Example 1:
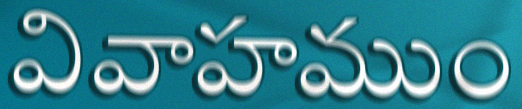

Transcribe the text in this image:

వివాహముం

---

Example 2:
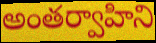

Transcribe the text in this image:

అంతర్వాహిని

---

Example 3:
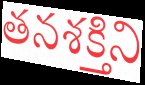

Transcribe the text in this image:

తనశక్తిని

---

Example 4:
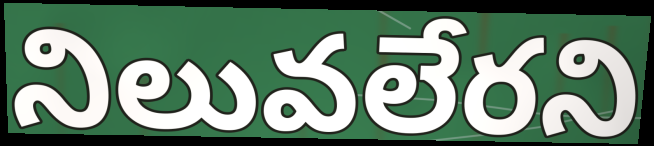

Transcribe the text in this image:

నిలువలేరని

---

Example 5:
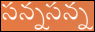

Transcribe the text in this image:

సన్నసన్న